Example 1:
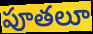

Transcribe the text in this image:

పూతలూ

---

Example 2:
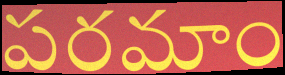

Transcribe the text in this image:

పరమాం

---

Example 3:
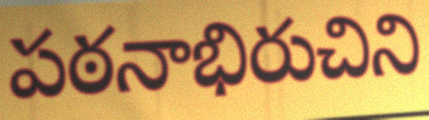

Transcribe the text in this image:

పఠనాభిరుచిని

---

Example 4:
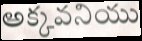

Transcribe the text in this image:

అక్కవనియు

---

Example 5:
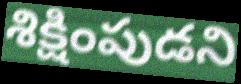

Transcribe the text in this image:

శిక్షింపుడని